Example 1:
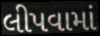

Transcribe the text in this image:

લીપવામાં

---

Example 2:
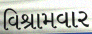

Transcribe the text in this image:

વિશ્રામવાર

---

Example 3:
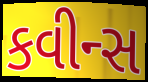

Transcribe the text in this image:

કવીન્સ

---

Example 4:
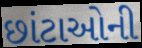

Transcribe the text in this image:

છાંટાઓની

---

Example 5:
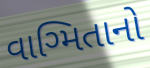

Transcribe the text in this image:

વાગ્મિતાનો